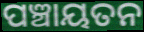
ପଞ୍ଚାୟତନ